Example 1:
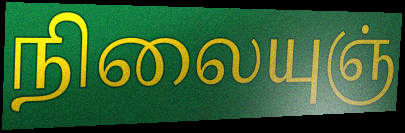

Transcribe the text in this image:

நிலையுஞ்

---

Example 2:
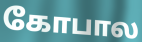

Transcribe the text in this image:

கோபால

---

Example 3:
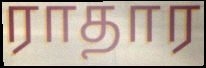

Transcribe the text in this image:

ராதார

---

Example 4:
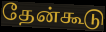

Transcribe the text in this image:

தேன்கூடு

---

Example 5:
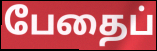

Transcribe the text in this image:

பேதைப்